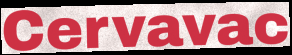
Cervavac